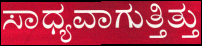
ಸಾಧ್ಯವಾಗುತ್ತಿತ್ತು